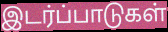
இடர்ப்பாடுகள்